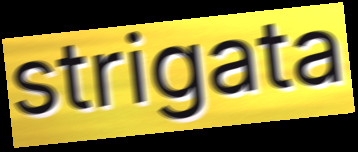
strigata